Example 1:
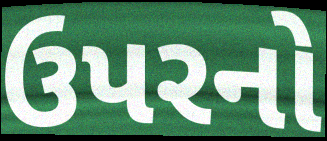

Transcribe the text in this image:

ઉપરનો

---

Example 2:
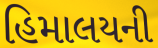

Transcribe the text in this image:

હિમાલયની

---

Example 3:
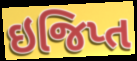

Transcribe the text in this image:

ઇજિપ્ત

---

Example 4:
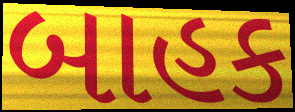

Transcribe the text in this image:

બાહક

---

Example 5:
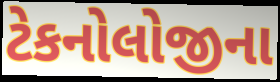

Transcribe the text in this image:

ટેકનોલોજીના